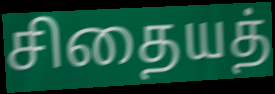
சிதையத்